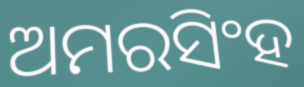
ଅମରସିଂହ